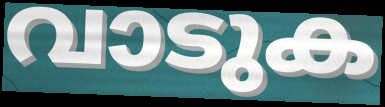
വാടുക